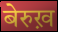
बेरुख़